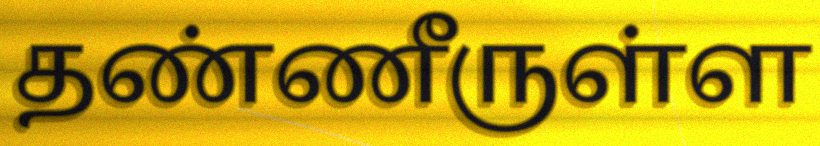
தண்ணீருள்ள